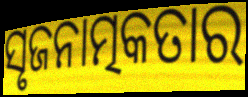
ସୃଜନାତ୍ମକତାର